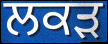
ਲਕੜ